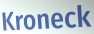
Kroneck